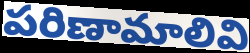
పరిణామాలివి